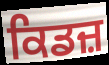
ਕਿਡਜ਼